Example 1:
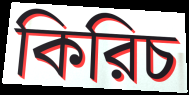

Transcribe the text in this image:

কিরিচ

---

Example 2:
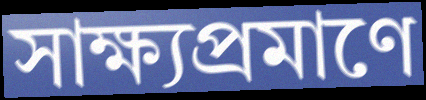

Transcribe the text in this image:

সাক্ষ্যপ্রমাণে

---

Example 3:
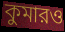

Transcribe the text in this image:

কুমারও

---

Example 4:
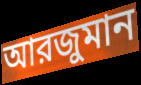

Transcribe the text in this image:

আরজুমান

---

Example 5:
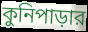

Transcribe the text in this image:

কুনিপাড়ার